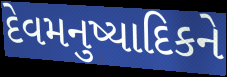
દેવમનુષ્યાદિકને